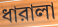
ধারালা